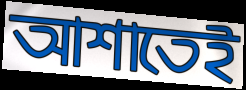
আশাতেই